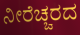
ನೀರೆಚ್ಚರದ